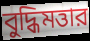
বুদ্ধিমত্তার